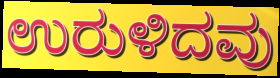
ಉರುಳಿದವು